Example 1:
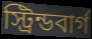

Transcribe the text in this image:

স্ট্রিন্ডবার্গ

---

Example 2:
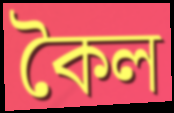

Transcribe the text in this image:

কৈল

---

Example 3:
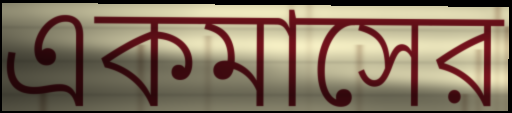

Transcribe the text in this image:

একমাসের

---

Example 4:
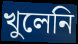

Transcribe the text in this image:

খুলেনি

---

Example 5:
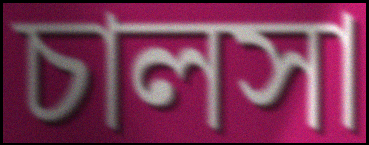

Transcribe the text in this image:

চালসা